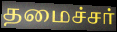
தமைச்சர்